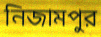
নিজামপুর